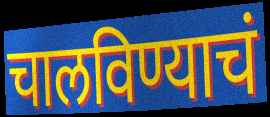
चालविण्याचं